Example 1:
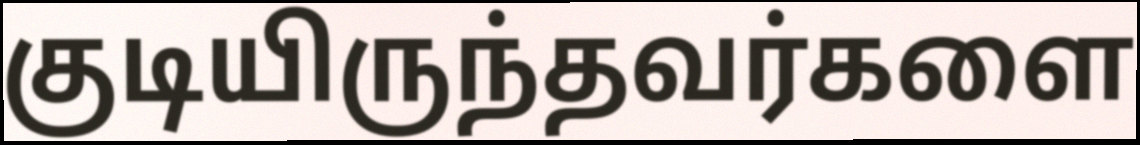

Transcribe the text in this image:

குடியிருந்தவர்களை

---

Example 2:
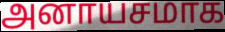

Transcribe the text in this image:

அனாயசமாக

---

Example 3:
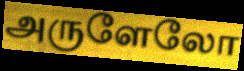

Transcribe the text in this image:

அருளேலோ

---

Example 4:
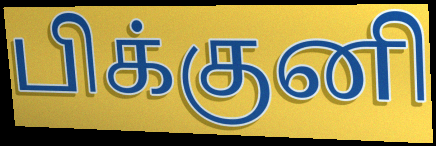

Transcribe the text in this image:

பிக்குனி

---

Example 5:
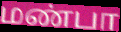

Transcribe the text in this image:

மண்பா